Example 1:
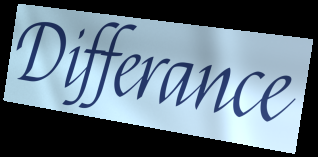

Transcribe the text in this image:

Differance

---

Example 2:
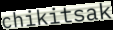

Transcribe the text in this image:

chikitsak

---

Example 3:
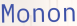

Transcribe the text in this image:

Monon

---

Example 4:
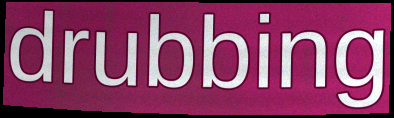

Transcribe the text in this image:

drubbing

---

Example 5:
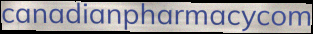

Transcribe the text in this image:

canadianpharmacycom